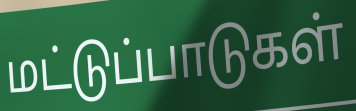
மட்டுப்பாடுகள்